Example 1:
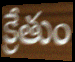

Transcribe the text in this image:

క్రేతుం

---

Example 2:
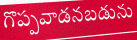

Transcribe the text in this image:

గొప్పవాడనబడును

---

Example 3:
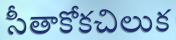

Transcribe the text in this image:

సీతాకోకచిలుక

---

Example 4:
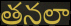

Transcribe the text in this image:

తనలా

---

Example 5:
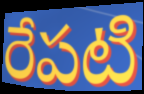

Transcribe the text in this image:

రేపటి